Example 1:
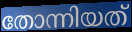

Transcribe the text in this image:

തോന്നിയത്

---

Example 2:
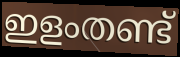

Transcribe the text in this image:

ഇളംതണ്ട്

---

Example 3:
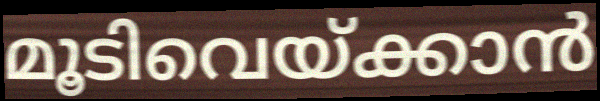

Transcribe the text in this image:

മൂടിവെയ്ക്കാൻ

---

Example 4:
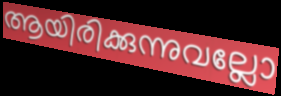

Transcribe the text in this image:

ആയിരിക്കുന്നുവല്ലോ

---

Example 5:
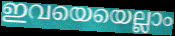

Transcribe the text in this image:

ഇവയെയെല്ലാം